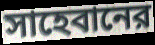
সাহেবানের